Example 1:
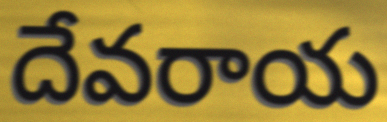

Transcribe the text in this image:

దేవరాయ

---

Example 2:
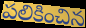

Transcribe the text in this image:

పలికించిన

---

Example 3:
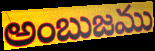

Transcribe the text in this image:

అంబుజము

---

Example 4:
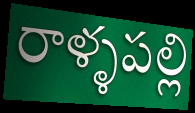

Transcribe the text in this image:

రాళ్ళపల్లి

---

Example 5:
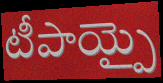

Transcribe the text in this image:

టీపాయ్పై